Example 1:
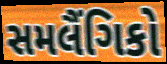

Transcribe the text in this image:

સમલૈંગિકો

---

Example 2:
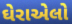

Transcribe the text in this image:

ઘેરાએલો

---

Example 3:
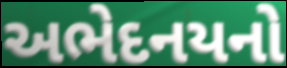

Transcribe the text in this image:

અભેદનયનો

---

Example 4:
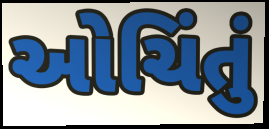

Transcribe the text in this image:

ઓચિંતું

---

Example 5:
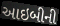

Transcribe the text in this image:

આઇબીની